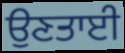
ਉਣਤਾਈ